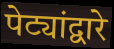
पेट्यांद्वारे